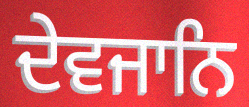
ਦੇਵਜਾਨਿ